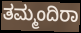
ತಮ್ಮಂದಿರಾ